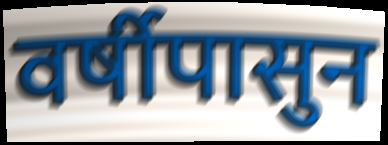
वर्षीपासुन